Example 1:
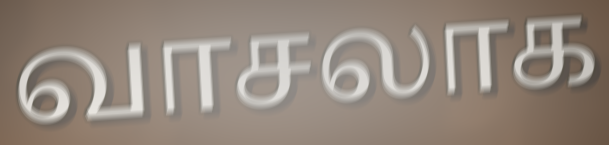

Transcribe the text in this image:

வாசலாக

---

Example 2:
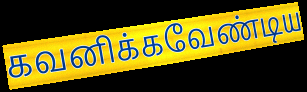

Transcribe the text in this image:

கவனிக்கவேண்டிய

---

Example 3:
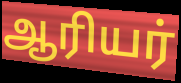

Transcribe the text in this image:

ஆரியர்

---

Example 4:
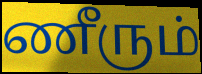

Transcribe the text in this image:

ணீரும்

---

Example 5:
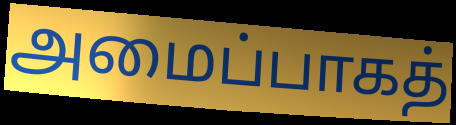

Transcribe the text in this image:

அமைப்பாகத்